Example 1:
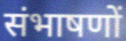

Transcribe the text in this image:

संभाषणों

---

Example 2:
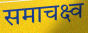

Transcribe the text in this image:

समाचक्ष्व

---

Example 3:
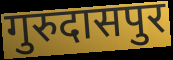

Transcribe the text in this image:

गुरुदासपुर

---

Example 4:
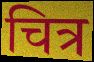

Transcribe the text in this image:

चित्र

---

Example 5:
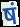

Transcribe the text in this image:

षं